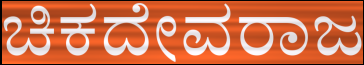
ಚಿಕದೇವರಾಜ